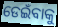
ଡେଇଁବାକୁ